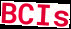
BCIs